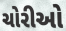
ચોરીઓ